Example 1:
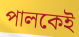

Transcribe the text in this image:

পালকেই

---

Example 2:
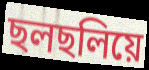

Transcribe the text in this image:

ছলছলিয়ে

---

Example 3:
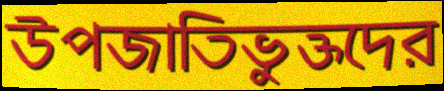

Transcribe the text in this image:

উপজাতিভুক্তদের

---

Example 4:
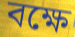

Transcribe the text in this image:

বক্ষে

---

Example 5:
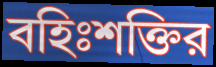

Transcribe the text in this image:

বহিঃশক্তির